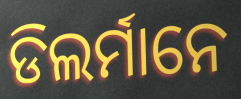
ଡିଲର୍ମାନେ